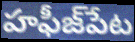
హఫీజ్‌పేట